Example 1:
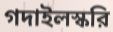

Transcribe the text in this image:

গদাইলস্করি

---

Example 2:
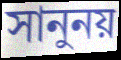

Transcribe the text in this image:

সানুনয়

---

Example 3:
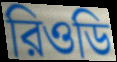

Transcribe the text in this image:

রিওডি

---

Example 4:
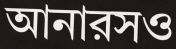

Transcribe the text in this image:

আনারসও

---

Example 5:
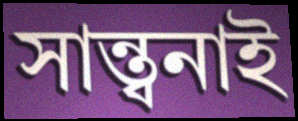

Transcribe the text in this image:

সান্ত্বনাই